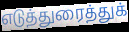
எடுத்துரைத்துக்